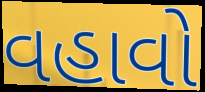
વહાવો